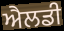
ਐਲਡੀ